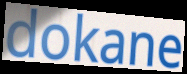
dokane